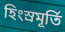
হিংস্রমূর্তি